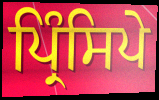
ਪ੍ਰਿੰਸਿਪੇ